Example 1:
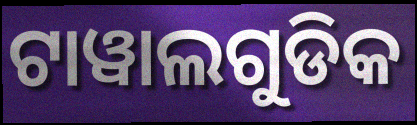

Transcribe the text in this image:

ଟାୱାଲଗୁଡିକ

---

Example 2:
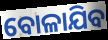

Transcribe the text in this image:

ବୋଳାଯିବ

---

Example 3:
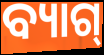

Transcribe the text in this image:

ବ୍ୟାଗ୍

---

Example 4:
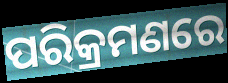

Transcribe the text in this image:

ପରିକ୍ରମଣରେ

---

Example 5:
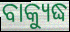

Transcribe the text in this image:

ବାକ୍ଯୁଦ୍ଧ